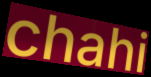
chahi